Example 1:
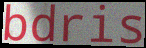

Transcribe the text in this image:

bdris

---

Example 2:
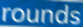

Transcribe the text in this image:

rounds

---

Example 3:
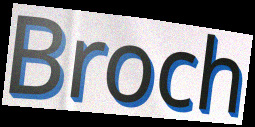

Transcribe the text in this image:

Broch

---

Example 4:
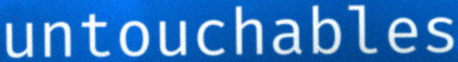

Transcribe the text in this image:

untouchables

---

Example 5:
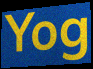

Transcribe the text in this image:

Yog